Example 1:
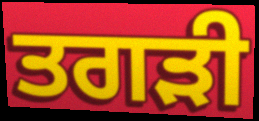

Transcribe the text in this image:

ਤਗੜੀ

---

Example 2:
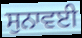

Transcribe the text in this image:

ਸੁਨਾਵਈ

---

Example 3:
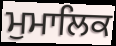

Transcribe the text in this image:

ਮੁਮਾਲਿਕ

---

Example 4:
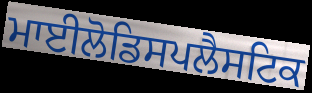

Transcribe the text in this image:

ਮਾਈਲੋਡਿਸਪਲੈਸਟਿਕ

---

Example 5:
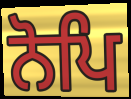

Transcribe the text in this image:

ਨੋਪਿ